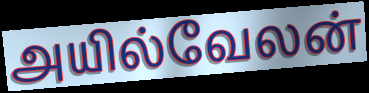
அயில்வேலன்